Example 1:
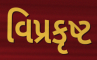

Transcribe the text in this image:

વિપ્રકૃષ્ટ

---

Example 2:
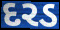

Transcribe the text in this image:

દરડ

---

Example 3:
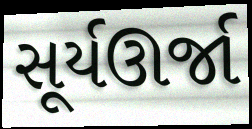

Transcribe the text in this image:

સૂર્યઊર્જા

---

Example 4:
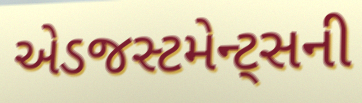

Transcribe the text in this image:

એડજસ્ટમેન્ટ્સની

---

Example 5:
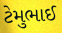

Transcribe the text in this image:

ટેમુભાઈ